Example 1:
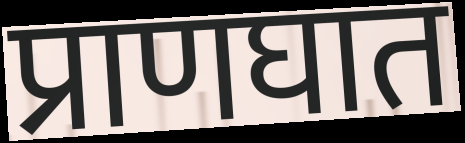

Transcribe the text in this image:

प्राणघात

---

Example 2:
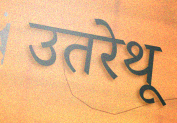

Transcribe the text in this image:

उतरेथू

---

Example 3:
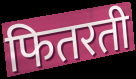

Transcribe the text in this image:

फितरती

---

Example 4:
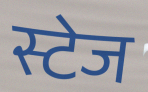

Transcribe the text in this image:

स्‍टेज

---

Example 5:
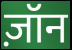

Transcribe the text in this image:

ज़ॉन